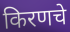
किरणचे